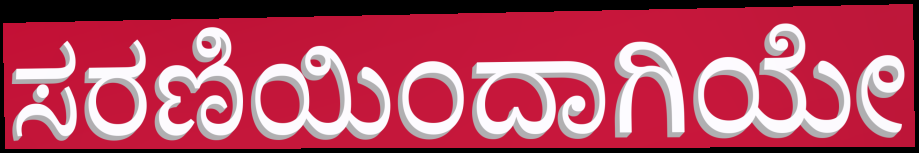
ಸರಣಿಯಿಂದಾಗಿಯೇ